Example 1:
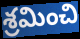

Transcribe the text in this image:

శ్రమించి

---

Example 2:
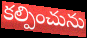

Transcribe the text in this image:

కల్పించును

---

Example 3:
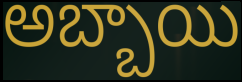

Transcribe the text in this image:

అబ్బాయి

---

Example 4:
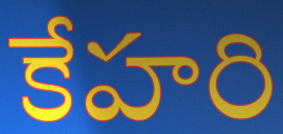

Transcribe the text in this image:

కేహరి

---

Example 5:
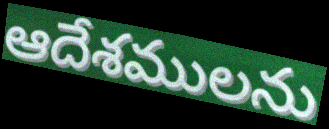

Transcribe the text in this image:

ఆదేశములను